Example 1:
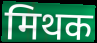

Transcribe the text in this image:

मिथक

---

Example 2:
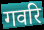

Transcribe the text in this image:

गवरि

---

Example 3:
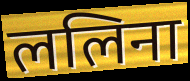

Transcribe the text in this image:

ललिना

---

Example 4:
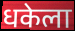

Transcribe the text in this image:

धकेला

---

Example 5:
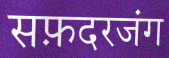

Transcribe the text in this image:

सफ़दरजंग